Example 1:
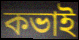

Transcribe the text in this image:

কভাই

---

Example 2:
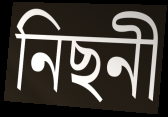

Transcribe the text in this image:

নিছনী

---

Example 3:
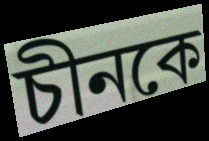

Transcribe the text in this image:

চীনকে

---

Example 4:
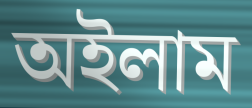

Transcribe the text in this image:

অইলাম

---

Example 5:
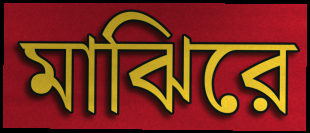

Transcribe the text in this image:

মাঝিরে